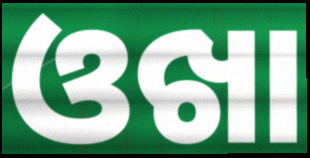
ଓଖା